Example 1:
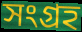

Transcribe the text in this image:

সংগ্রহ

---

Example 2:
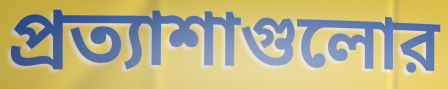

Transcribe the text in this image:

প্রত্যাশাগুলোর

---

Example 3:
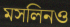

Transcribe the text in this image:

মসলিনও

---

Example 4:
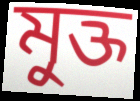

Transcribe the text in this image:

মুক্ত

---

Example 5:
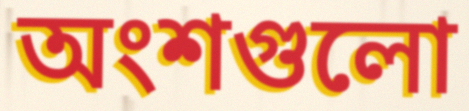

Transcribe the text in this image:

অংশগুলো